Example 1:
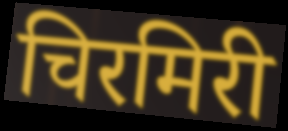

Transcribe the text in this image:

चिरमिरी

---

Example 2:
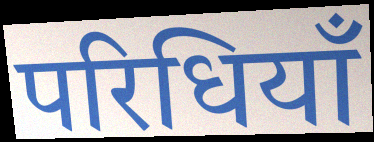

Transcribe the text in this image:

परिधियाँ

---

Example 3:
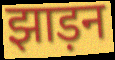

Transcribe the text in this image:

झाड़न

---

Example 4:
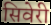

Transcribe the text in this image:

सिवेरी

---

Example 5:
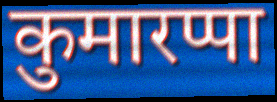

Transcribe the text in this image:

कुमारप्पा